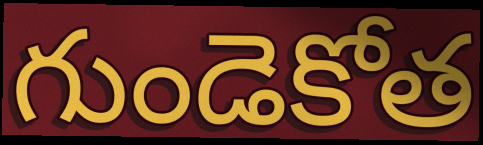
గుండెకోత